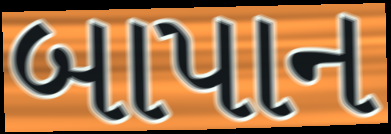
બાપાન